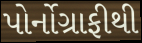
પોર્નોગ્રાફીથી